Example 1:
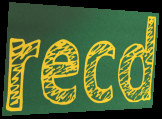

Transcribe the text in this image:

recd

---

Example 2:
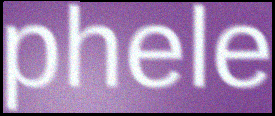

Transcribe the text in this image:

phele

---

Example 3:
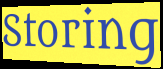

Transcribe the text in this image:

Storing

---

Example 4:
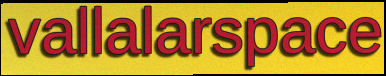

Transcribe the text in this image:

vallalarspace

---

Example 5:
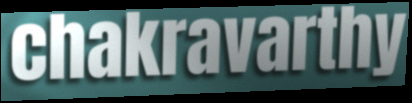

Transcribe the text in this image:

chakravarthy